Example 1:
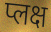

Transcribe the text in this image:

प्लक्ष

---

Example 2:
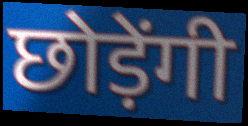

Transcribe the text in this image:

छोड़ेंगी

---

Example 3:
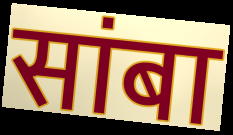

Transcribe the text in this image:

सांबा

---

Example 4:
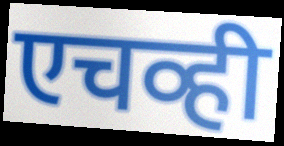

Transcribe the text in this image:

एचव्ही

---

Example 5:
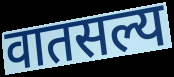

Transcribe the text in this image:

वातसल्य